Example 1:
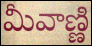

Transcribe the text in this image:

మీవాణ్ణి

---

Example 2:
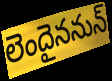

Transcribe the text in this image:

లెందైననున్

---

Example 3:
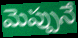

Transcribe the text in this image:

మెప్పునే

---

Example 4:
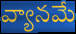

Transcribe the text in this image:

వ్యానమే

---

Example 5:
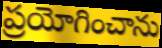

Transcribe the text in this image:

ప్రయోగించాను